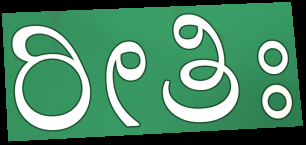
ರೀತಿಃ